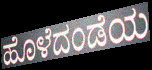
ಹೊಳೆದಂಡೆಯ